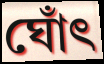
ঘোঁৎ